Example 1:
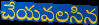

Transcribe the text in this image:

చేయవలసిన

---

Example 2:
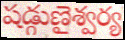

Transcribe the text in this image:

షడ్గుణైశ్వర్య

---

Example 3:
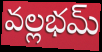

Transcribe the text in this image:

వల్లభమ్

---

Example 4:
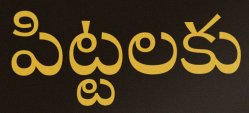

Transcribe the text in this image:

పిట్టలకు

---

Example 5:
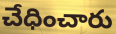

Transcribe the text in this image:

చేధించారు